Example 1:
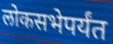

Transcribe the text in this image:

लोकसभेपर्यंत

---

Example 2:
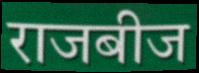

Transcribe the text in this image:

राजबीज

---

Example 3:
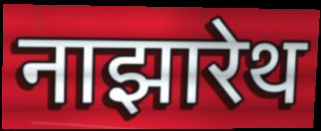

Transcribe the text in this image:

नाझारेथ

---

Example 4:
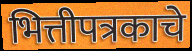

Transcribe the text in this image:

भित्तीपत्रकाचे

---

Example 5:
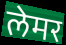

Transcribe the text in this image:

लेमर